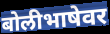
बोलीभाषेवर